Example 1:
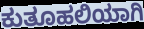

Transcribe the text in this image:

ಕುತೂಹಲಿಯಾಗಿ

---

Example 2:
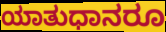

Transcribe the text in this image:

ಯಾತುಧಾನರೂ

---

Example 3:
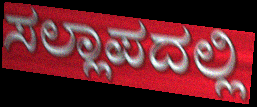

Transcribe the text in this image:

ಸಲ್ಲಾಪದಲ್ಲಿ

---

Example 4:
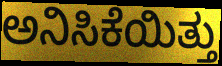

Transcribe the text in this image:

ಅನಿಸಿಕೆಯಿತ್ತು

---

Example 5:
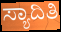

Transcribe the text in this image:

ಸ್ಯಾದಿತಿ